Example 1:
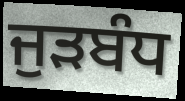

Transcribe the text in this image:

ਜੁੜਬੰਧ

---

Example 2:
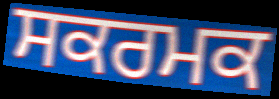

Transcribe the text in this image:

ਸਕਰਮਕ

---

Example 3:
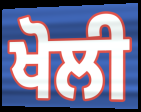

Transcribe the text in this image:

ਖੋਲੀ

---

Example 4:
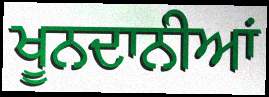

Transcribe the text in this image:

ਖੂਨਦਾਨੀਆਂ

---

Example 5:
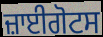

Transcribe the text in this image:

ਜ਼ਾਈਗੋਟਸ